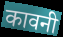
कावनी